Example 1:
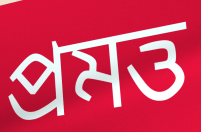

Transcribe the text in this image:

প্রমত্ত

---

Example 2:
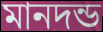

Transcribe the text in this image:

মানদন্ড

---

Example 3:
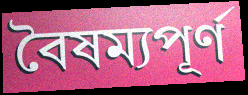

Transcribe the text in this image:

বৈষম্যপূর্ণ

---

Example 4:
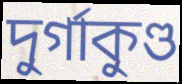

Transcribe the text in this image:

দুর্গাকুণ্ড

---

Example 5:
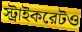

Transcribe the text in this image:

স্ট্রাইকরেটও